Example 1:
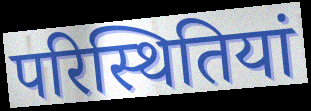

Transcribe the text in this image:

परिस्थितियां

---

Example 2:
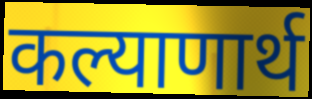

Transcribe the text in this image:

कल्याणार्थ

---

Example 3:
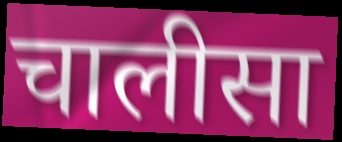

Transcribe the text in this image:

चालीसा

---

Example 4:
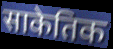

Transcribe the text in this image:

साकेतिक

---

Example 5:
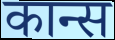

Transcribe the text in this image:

कान्स